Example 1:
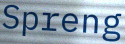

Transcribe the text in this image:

Spreng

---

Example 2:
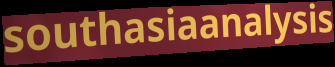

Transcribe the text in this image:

southasiaanalysis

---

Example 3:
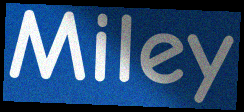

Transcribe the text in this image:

Miley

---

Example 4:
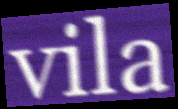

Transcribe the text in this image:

vila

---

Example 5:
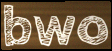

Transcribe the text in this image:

bwo